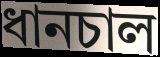
ধানচাল